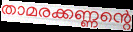
താമരക്കണ്ണന്റെ